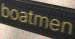
boatmen